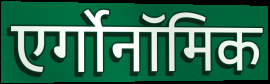
एर्गोनॉमिक